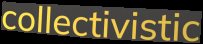
collectivistic